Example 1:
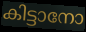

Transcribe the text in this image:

കിട്ടാനോ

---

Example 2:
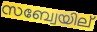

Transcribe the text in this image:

സബ്വേയില്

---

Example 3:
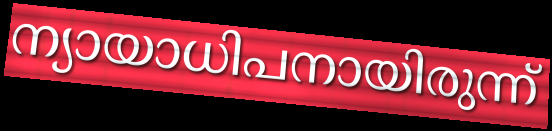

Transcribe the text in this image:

ന്യായാധിപനായിരുന്ന്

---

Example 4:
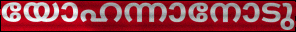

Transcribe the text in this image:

യോഹന്നാനോടു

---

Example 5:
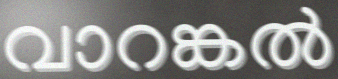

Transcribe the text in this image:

വാറങ്കൽ